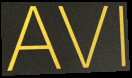
AVI